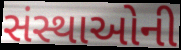
સંસ્થાઓની